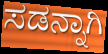
ಸಡನ್ನಾಗಿ